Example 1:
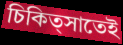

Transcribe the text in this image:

চিকিত্সাতেই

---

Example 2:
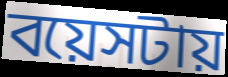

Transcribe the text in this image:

বয়েসটায়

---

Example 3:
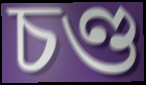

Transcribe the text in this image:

চণ্ড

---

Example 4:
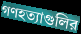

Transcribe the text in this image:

গণহত্যাগুলির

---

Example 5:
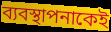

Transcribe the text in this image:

ব্যবস্থাপনাকেই